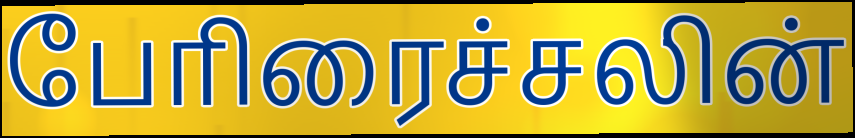
பேரிரைச்சலின்